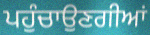
ਪਹੁੰਚਾਉਣਗੀਆਂ